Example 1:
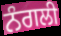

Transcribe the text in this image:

ਨੰਗਲੀ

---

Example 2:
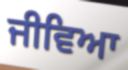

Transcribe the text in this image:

ਜੀਵਿਆ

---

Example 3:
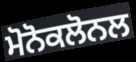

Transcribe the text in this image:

ਮੋਨੋਕਲੋਨਲ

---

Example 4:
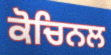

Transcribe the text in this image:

ਕੋਚਿਨਲ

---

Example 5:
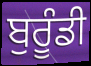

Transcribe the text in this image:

ਬੁਰੂੰਡੀ